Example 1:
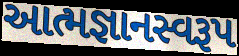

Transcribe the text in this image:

આત્મજ્ઞાનસ્વરૂપ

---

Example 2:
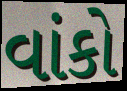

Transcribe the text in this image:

વાંકો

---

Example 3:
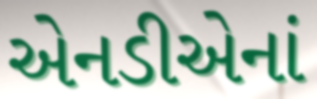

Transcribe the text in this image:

એનડીએનાં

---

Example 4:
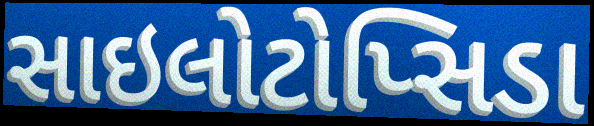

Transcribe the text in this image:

સાઇલોટોપ્સિડા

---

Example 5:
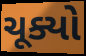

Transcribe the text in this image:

ચૂક્યો